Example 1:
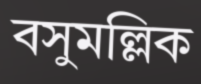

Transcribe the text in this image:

বসুমল্লিক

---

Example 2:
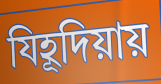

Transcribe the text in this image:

যিহূদিয়ায়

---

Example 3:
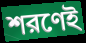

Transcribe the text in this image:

শরণেই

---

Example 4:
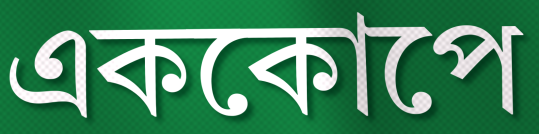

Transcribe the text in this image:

এককোপে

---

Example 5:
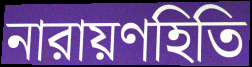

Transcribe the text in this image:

নারায়ণহিতি